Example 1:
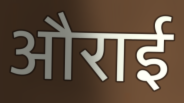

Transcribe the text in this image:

औराई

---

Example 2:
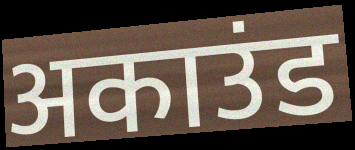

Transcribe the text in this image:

अकाउंड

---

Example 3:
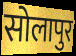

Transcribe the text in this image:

सोलापुर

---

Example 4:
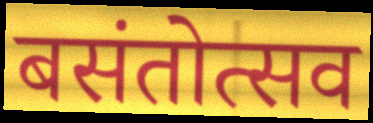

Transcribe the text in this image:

बसंतोत्सव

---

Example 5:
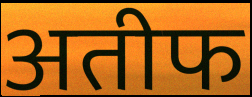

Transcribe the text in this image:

अतीफ